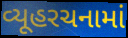
વ્યૂહરચનામાં